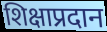
शिक्षाप्रदान